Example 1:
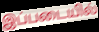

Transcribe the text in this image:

இப்படையில்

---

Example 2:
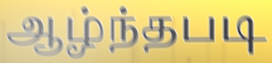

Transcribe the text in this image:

ஆழ்ந்தபடி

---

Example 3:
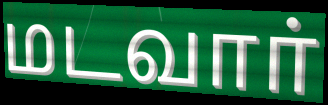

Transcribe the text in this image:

மடவார்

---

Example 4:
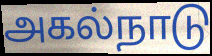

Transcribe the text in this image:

அகல்நாடு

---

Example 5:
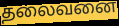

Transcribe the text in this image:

தலைவனை